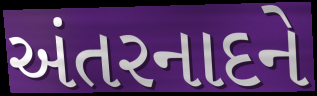
અંતરનાદને